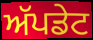
ਅੱਪਡੇਟ